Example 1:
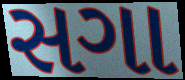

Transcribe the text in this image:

સગા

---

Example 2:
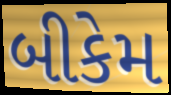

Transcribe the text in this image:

બીકેમ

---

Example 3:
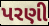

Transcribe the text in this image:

પરણી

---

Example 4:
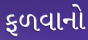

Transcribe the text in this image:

ફળવાનો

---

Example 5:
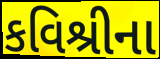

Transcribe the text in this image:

કવિશ્રીના